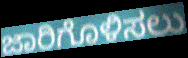
ಜಾರಿಗೊಳಿಸಲು